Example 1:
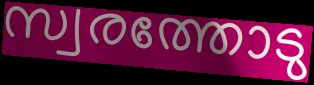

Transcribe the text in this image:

സ്വരത്തോടു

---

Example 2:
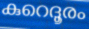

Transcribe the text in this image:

കുറെദൂരം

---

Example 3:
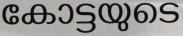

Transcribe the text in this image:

കോട്ടയുടെ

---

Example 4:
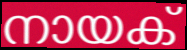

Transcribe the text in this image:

നായക്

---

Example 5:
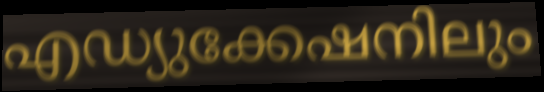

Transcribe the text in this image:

എഡ്യുക്കേഷനിലും